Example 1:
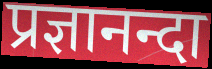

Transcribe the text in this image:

प्रज्ञानन्दा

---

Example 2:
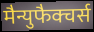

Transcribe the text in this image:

मैन्युफैक्चर्स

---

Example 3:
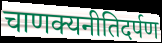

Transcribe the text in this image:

चाणक्यनीतिदर्पण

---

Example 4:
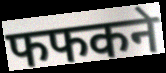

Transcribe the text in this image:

फफकने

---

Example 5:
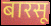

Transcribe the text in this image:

बारसू